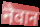
नेवान